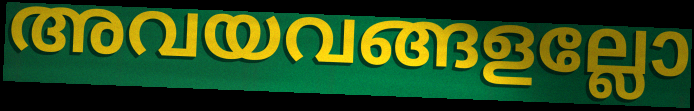
അവയവങ്ങളല്ലോ